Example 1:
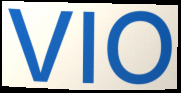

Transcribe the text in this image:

VIO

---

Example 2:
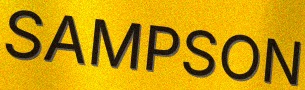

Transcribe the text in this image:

SAMPSON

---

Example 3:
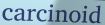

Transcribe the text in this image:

carcinoid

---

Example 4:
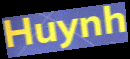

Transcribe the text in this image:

Huynh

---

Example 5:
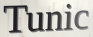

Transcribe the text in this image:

Tunic